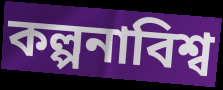
কল্পনাবিশ্ব